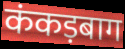
कंकड़बाग